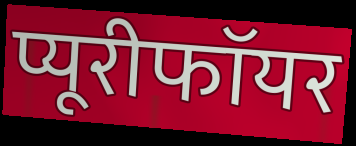
प्यूरीफॉयर